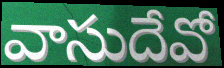
వాసుదేవో